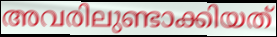
അവരിലുണ്ടാക്കിയത്